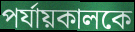
পর্যায়কালকে